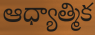
ఆధ్యాత్మిక